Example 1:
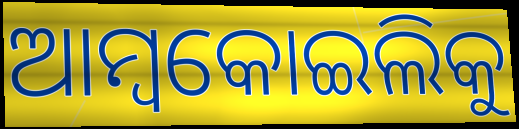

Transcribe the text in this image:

ଆମ୍ବକୋଇଲିକୁ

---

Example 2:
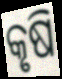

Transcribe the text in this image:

କୃଷି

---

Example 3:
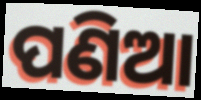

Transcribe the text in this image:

ପଣିଆ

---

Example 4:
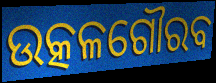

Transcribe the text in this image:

ଉତ୍କଳଗୌରବ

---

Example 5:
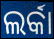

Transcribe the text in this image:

ଲର୍କା